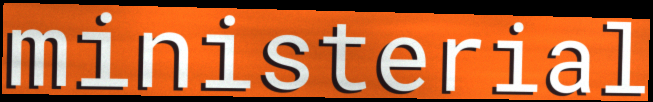
ministerial